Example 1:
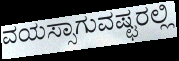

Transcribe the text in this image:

ವಯಸ್ಸಾಗುವಷ್ಟರಲ್ಲಿ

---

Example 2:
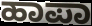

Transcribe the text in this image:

ಹಾಪಾ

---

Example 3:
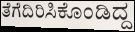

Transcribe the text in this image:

ತೆಗೆದಿರಿಸಿಕೊಂಡಿದ್ದ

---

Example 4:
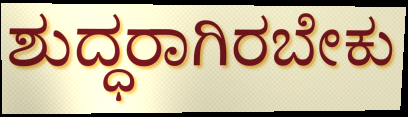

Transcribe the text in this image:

ಶುದ್ಧರಾಗಿರಬೇಕು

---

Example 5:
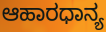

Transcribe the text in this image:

ಆಹಾರಧಾನ್ಯ